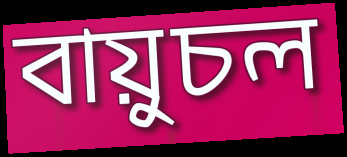
বায়ুচল